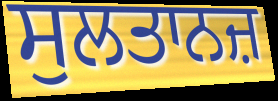
ਸੁਲਤਾਨਜ਼